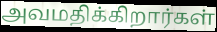
அவமதிக்கிறார்கள்